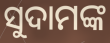
ସୁଦାମଙ୍କ